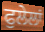
ਫੁਲੇਲਾਂ